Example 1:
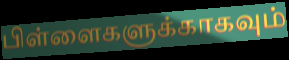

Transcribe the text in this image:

பிள்ளைகளுக்காகவும்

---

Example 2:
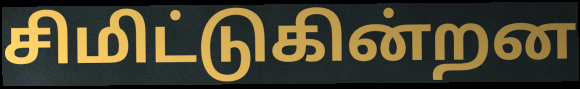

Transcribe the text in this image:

சிமிட்டுகின்றன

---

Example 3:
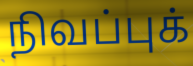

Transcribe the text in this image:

நிவப்புக்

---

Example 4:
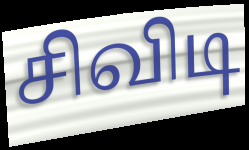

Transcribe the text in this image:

சிவிடி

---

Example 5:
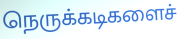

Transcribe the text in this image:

நெருக்கடிகளைச்